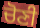
ਚੋਣੀ